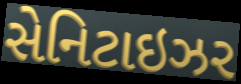
સેનિટાઇઝર